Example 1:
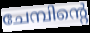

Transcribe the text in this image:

ചേമ്പിന്റെ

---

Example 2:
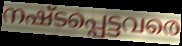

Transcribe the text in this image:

നഷ്ടപ്പെട്ടവരെ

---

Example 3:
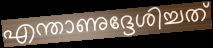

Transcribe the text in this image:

എന്താണുദ്ദേശിച്ചത്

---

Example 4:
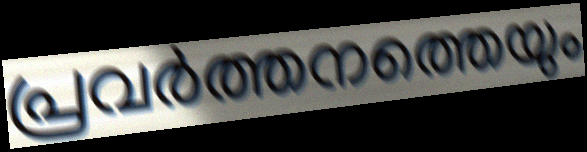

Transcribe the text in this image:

പ്രവർത്തനത്തെയും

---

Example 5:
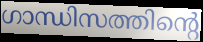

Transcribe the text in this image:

ഗാന്ധിസത്തിന്റെ